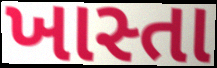
ખાસ્તા